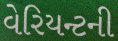
વેરિયન્ટની